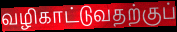
வழிகாட்டுவதற்குப்